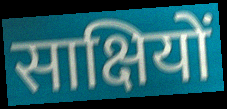
साक्षियों